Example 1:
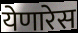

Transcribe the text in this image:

येणारेस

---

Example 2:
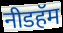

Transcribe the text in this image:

नीडहॅम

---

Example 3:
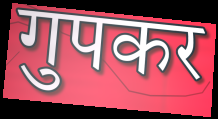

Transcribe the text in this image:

गुपकर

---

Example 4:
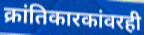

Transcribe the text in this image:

क्रांतिकारकांवरही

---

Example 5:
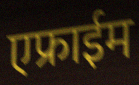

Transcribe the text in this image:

एफ्राईम